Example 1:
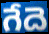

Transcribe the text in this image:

గేదె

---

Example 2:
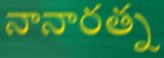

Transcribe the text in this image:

నానారత్న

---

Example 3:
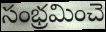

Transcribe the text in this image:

సంభ్రమించె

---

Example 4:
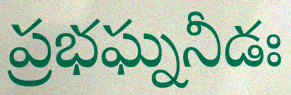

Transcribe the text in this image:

ప్రభఘ్ననీడః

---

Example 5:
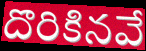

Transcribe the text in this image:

దొరికినవే